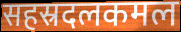
सहस्रदलकमल